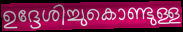
ഉദ്ദേശിച്ചുകൊണ്ടുള്ള